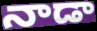
నాడా